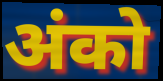
अंको